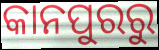
କାନପୁରରୁ